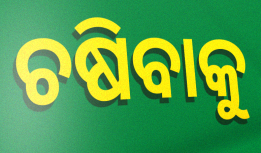
ଚଷିବାକୁ